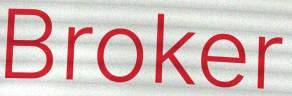
Broker